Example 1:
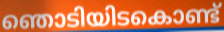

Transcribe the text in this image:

ഞൊടിയിടകൊണ്ട്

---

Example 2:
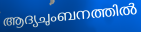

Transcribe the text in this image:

ആദ്യചുംബനത്തിൽ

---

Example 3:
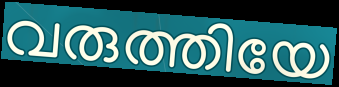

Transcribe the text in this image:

വരുത്തിയേ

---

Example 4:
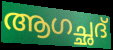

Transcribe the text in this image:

ആഗച്ഛദ്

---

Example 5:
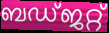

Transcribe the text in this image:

ബഡ്ജറ്റ്